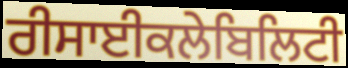
ਰੀਸਾਈਕਲੇਬਿਲਿਟੀ